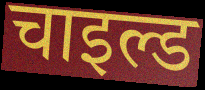
चाइल्ड